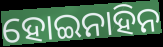
ହୋଇନାହିନ